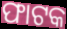
ଫାଟକ